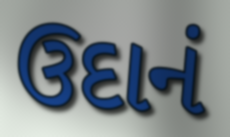
ઉદાનં